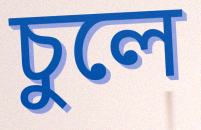
চুলে